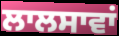
ਲਾਲਸਾਵਾਂ